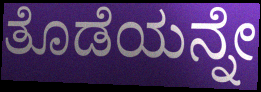
ತೊಡೆಯನ್ನೇ